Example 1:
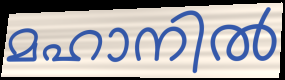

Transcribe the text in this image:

മഹാനിൽ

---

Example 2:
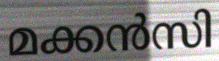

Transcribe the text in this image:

മക്കൻസി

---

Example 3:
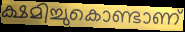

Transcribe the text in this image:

ക്ഷമിച്ചുകൊണ്ടാണ്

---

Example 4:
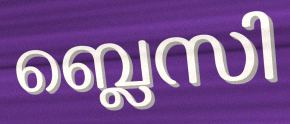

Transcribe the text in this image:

ബ്ലെസി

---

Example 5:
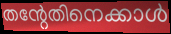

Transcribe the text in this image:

തന്റേതിനെക്കാൾ